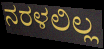
ನರಳಲಿಲ್ಲ